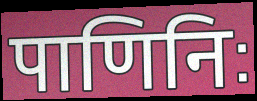
पाणिनिः